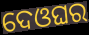
ଦେଓଘର